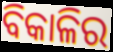
ବିକାଳିର